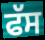
ਫੱਸ